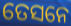
ତେସନେ